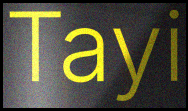
Tayi